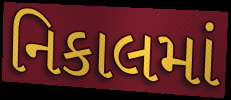
નિકાલમાં